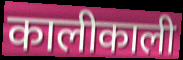
कालीकाली